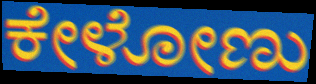
ಕೇಳೋಣು